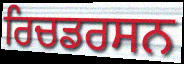
ਰਿਚਡਰਸਨ